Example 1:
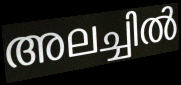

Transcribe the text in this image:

അലച്ചിൽ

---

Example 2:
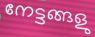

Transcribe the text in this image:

നേട്ടങ്ങളു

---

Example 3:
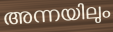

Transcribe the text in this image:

അന്നയിലും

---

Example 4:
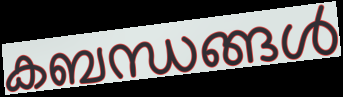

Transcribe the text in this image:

കബന്ധങ്ങൾ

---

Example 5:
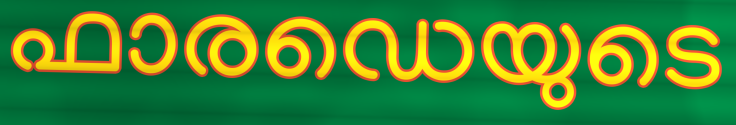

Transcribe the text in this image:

ഫാരഡെയുടെ